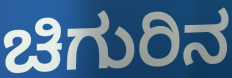
ಚಿಗುರಿನ